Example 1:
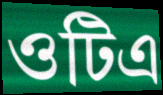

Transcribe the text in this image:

ওটিএ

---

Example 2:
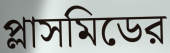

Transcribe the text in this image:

প্লাসমিডের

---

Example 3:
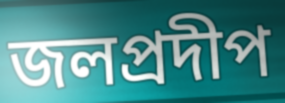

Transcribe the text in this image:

জলপ্রদীপ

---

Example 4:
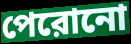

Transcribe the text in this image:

পেরোনো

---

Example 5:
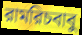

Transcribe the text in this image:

রামরিচবাবু